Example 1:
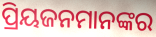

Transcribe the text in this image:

ପ୍ରିୟଜନମାନଙ୍କର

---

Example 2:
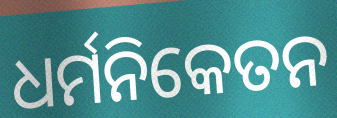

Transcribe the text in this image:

ଧର୍ମନିକେତନ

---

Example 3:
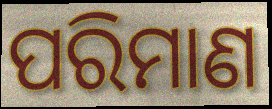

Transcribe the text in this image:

ପରିମାଣ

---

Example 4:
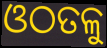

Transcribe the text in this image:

ଓଠତଳୁ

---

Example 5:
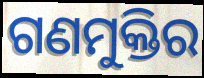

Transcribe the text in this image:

ଗଣମୁକ୍ତିର